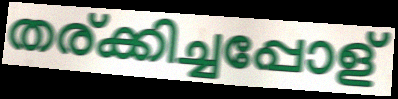
തര്ക്കിച്ചപ്പോള്